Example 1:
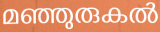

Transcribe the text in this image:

മഞ്ഞുരുകൽ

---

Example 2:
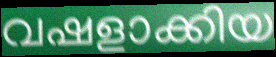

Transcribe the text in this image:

വഷളാക്കിയ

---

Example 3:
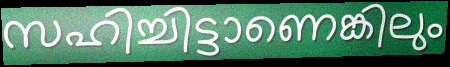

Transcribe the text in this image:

സഹിച്ചിട്ടാണെങ്കിലും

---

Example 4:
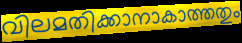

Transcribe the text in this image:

വിലമതിക്കാനാകാത്തതും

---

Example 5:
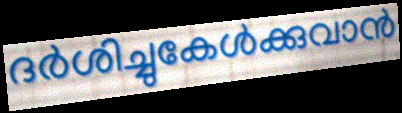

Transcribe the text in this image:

ദർശിച്ചുകേൾക്കുവാൻ